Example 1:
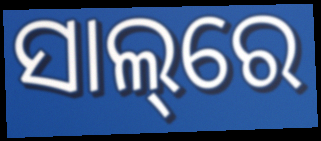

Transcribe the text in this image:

ସାଲ୍‌ରେ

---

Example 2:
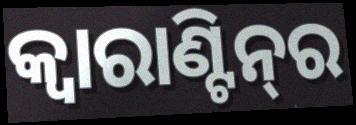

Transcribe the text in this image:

କ୍ବାରାଣ୍ଟିନ୍‌ର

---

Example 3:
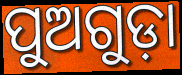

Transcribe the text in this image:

ପୁଅଗୁଡ଼ା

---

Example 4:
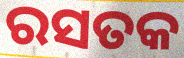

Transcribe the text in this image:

ରସତକ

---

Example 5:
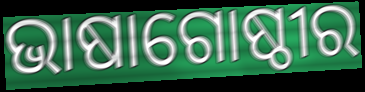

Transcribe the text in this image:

ଭାଷାଗୋଷ୍ଠୀର